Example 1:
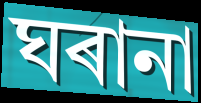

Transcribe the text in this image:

ঘৰানা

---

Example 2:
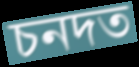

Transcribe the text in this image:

চনদত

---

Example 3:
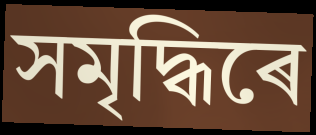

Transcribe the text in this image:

সমৃদ্ধিৰে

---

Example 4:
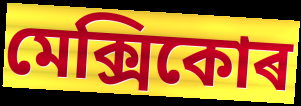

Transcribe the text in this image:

মেক্সিকোৰ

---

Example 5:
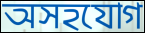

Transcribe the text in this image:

অসহযোগ